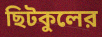
ছিটকুলের